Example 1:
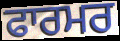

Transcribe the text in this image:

ਫਾਰਮਰ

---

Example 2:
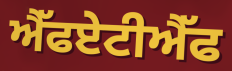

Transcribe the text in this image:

ਐੱਫਏਟੀਐੱਫ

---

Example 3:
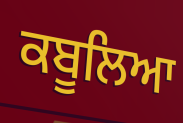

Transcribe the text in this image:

ਕਬੂਲਿਆ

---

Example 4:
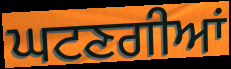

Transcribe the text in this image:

ਘਟਣਗੀਆਂ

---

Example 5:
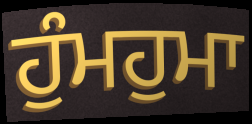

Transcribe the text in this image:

ਹੁੰਮਹੁਮਾ